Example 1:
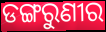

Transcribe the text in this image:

ଡଙ୍ଗରୁଣୀର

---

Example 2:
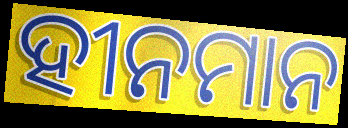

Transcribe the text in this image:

ହୀନମାନ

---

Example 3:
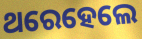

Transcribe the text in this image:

ଥରେହେଲେ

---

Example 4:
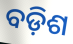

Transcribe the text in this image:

ବଡ଼ିଶ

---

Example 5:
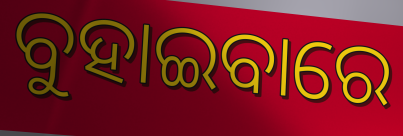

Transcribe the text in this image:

ବୁହାଇବାରେ